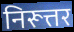
निरूत्तर